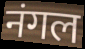
नंगल